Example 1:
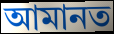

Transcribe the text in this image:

আমানত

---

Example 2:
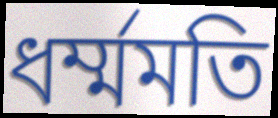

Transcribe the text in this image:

ধর্ম্মমতি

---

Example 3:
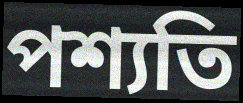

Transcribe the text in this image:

পশ্যতি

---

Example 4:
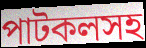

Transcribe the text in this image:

পাটকলসহ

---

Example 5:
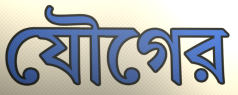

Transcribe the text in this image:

যৌগের